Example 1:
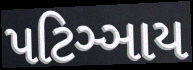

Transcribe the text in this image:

પટિઞ્ઞાય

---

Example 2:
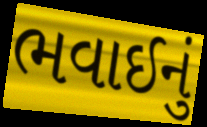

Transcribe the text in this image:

ભવાઈનું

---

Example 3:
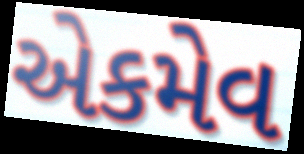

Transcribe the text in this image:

એકમેવ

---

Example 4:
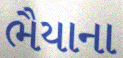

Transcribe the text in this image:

ભૈયાના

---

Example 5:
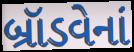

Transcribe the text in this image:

બ્રૉડવેનાં